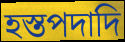
হস্তপদাদি